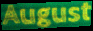
August